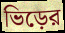
ভিড়ের